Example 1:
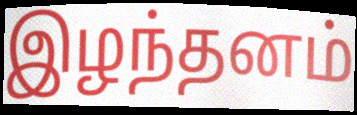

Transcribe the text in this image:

இழந்தனம்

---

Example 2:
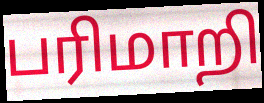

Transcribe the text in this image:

பரிமாறி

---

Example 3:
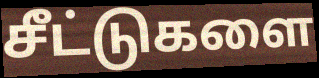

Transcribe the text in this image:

சீட்டுகளை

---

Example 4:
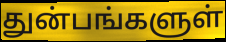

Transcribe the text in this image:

துன்பங்களுள்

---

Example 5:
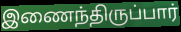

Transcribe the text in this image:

இணைந்திருப்பார்